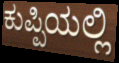
ಕುಪ್ಪಿಯಲ್ಲಿ